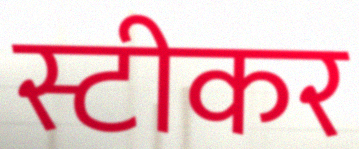
स्टीकर